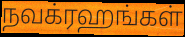
நவக்ரஹங்கள்